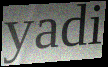
yadi